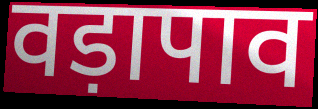
वड़ापाव